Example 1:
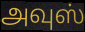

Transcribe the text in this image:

அவுஸ்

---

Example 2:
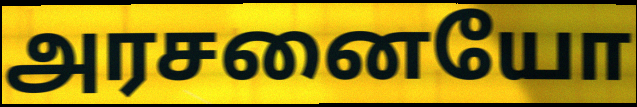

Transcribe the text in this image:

அரசனையோ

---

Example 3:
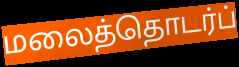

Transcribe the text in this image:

மலைத்தொடர்ப்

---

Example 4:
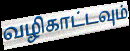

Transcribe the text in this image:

வழிகாட்டவும்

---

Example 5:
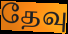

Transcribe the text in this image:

தேவு